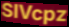
SIVcpz